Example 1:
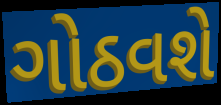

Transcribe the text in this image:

ગોઠવશે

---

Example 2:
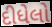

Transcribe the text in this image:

દીધેલો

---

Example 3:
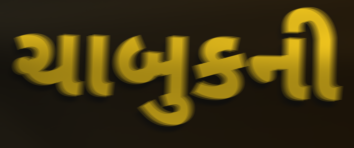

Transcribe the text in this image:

ચાબુકની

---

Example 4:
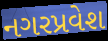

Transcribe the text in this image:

નગરપ્રવેશ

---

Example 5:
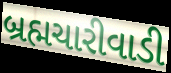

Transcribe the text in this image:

બ્રહ્મચારીવાડી